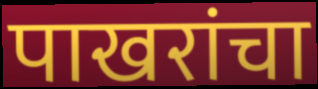
पाखरांचा